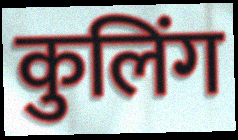
कुलिंग